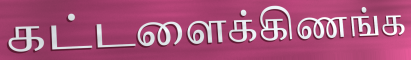
கட்டளைக்கிணங்க